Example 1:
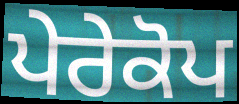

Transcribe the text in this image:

ਪੇਰੇਕੋਪ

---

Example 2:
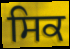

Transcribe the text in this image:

ਸਿਕ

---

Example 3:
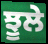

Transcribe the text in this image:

ਝੂਲੇ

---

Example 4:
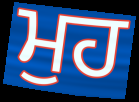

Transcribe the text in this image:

ਮੁਹ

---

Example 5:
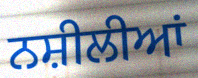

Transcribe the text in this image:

ਨਸ਼ੀਲੀਆਂ